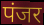
पंजर